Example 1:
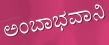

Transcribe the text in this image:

ಅಂಬಾಭವಾನಿ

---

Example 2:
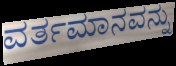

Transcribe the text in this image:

ವರ್ತಮಾನವನ್ನು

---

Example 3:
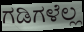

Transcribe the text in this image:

ಗಡಿಗಳೆಲ್ಲ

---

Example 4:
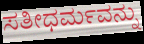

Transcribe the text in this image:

ಸತೀಧರ್ಮವನ್ನು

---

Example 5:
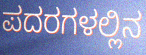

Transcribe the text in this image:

ಪದರಗಳಲ್ಲಿನ